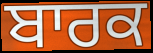
ਬਾਰਕ